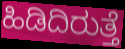
ಹಿಡಿದಿರುತ್ತೆ